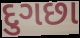
દુગછા